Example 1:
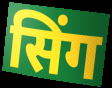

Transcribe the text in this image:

सिंग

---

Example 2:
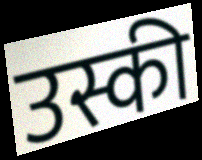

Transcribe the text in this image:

उस्‍की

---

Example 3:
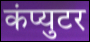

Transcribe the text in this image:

कंप्युटर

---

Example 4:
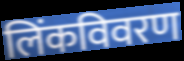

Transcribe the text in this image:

लिंकविवरण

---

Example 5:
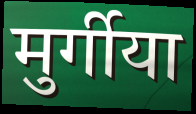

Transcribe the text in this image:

मुर्गीया